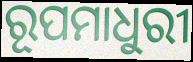
ରୂପମାଧୁରୀ